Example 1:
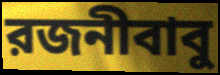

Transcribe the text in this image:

রজনীবাবু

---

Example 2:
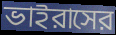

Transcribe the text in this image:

ভাইরাসের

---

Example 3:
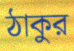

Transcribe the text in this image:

ঠাকুর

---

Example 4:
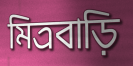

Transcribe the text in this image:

মিত্রবাড়ি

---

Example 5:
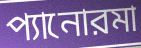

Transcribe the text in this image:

প্যানোরমা